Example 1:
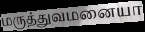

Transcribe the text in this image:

மருத்துவமனையா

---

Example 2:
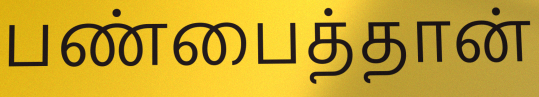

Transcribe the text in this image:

பண்பைத்தான்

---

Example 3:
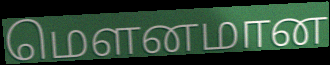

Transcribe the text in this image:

மௌனமான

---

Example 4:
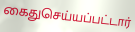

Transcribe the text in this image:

கைதுசெய்யப்பட்டார்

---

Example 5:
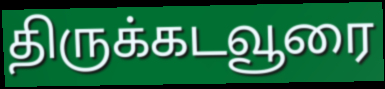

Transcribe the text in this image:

திருக்கடவூரை